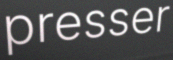
presser